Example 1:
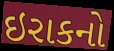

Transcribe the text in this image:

ઇરાકનો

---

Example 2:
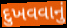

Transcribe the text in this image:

દુખવવાનું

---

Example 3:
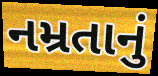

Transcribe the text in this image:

નમ્રતાનું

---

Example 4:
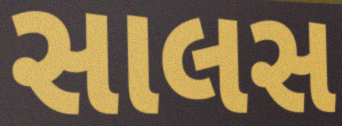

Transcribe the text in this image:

સાલસ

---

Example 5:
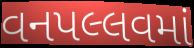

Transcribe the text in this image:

વનપલ્લવમાં